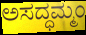
ಅಸದ್ಧಮ್ಮಂ